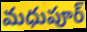
మధుపూర్